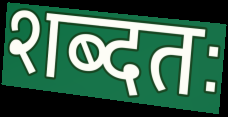
शब्दतः